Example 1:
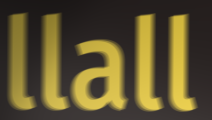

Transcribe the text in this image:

llall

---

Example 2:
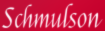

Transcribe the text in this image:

Schmulson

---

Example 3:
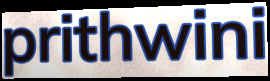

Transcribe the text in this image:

prithwini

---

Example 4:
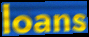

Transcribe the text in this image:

loans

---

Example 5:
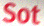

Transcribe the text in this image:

Sot